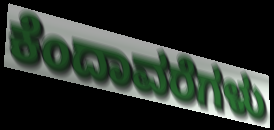
ಕೆಂದಾವರೆಗಳು